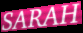
SARAH